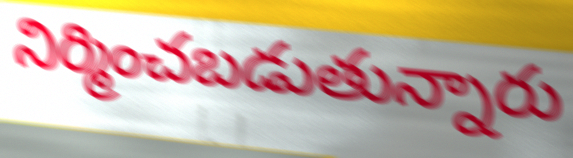
నిర్మించబడుతున్నారు